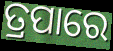
ତ୍ରପାରେ